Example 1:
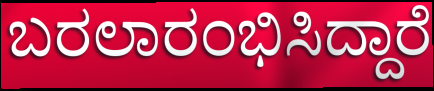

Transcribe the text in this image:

ಬರಲಾರಂಭಿಸಿದ್ದಾರೆ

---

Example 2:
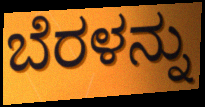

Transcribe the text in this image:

ಬೆರಳನ್ನು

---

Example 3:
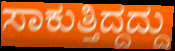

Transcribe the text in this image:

ಸಾಕುತ್ತಿದ್ದದ್ದು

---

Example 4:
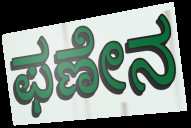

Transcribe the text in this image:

ಫಣೇನ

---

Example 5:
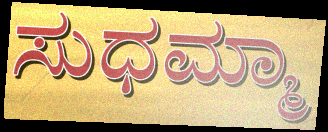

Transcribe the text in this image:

ಸುಧಮ್ಮಾ